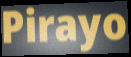
Pirayo